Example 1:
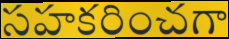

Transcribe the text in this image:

సహకరించగా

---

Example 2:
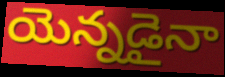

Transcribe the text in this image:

యెన్నడైనా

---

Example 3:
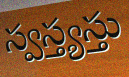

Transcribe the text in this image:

స్వస్త్యస్తు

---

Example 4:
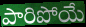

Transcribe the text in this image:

పారిపోయే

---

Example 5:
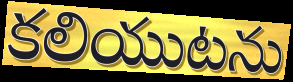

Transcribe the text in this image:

కలియుటను